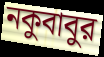
নকুবাবুর